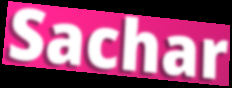
Sachar